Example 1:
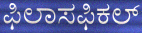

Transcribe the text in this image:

ಫಿಲಾಸಫಿಕಲ್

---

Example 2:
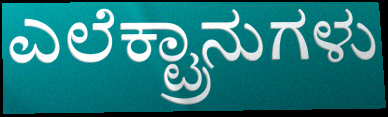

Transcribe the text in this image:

ಎಲೆಕ್ಟ್ರಾನುಗಳು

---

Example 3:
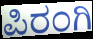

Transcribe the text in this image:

ಪಿರಂಗಿ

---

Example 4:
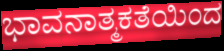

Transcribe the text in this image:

ಭಾವನಾತ್ಮಕತೆಯಿಂದ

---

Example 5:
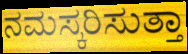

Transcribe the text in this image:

ನಮಸ್ಕರಿಸುತ್ತಾ